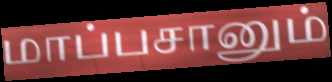
மாப்பசானும்